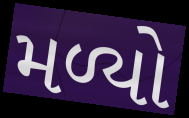
મળ્યો